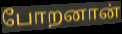
போறனான்